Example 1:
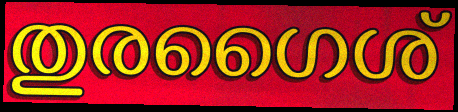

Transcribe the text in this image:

തുരഗൈശ്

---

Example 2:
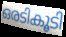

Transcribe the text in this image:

ഒരടികൂടി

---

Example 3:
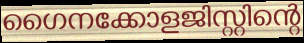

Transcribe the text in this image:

ഗൈനക്കോളജിസ്റ്റിന്റെ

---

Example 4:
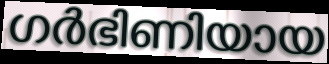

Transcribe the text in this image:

ഗർഭിണിയായ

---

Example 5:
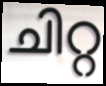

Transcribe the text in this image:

ചിറ്റ